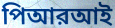
পিআরআই